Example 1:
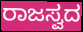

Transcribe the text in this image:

ರಾಜಸ್ವದ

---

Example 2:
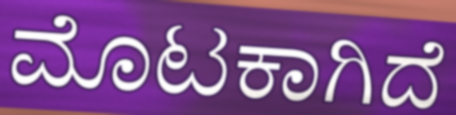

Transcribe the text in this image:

ಮೊಟಕಾಗಿದೆ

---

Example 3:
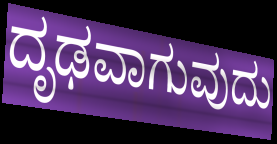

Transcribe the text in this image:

ದೃಢವಾಗುವುದು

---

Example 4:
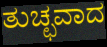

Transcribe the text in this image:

ತುಚ್ಛವಾದ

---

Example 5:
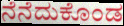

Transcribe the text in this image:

ನೆನೆದುಕೊಂಡ